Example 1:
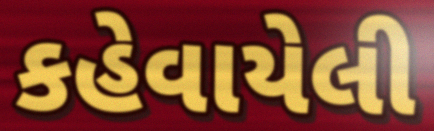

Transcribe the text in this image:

કહેવાયેલી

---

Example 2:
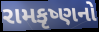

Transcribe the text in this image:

રામકૃષ્ણનો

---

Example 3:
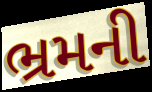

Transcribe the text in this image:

ભ્રમની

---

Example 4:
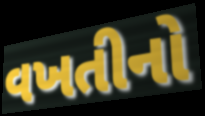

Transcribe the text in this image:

વખતીનો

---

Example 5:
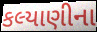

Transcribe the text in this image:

કલ્યાણીના